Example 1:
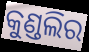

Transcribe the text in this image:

କୁଣ୍ଡଲିର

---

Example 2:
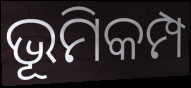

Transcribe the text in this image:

ଭୂମିକମ୍ପ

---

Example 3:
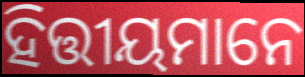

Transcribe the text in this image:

ହିତ୍ତୀୟମାନେ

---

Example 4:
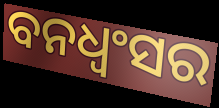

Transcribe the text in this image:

ବନଧ୍ଵଂସର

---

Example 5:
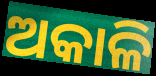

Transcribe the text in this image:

ଅକାଳି